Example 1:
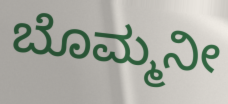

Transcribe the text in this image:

ಬೊಮ್ಮನೀ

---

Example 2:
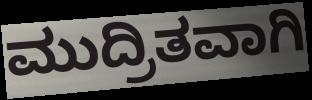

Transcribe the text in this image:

ಮುದ್ರಿತವಾಗಿ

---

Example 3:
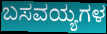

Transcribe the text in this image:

ಬಸವಯ್ಯಗಳ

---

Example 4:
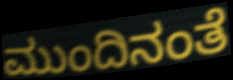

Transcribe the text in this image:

ಮುಂದಿನಂತೆ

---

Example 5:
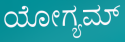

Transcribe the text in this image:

ಯೋಗ್ಯಮ್